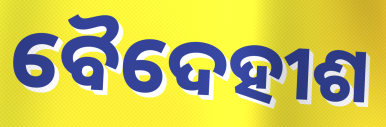
ବୈଦେହୀଶ